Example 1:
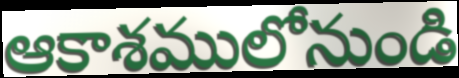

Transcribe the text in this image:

ఆకాశములోనుండి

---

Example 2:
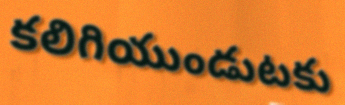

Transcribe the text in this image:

కలిగియుండుటకు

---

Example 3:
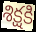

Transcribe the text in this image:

శిక్షకి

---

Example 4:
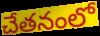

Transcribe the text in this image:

చేతనంలో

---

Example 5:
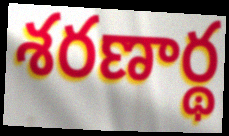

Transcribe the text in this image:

శరణార్థ